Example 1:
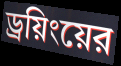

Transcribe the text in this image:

ড্রয়িংয়ের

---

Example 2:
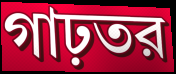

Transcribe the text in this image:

গাঢ়তর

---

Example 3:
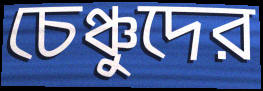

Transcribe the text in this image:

চেঞ্চুদের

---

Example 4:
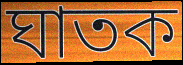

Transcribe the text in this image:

ঘাতক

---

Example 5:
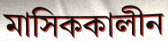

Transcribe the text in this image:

মাসিককালীন